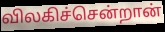
விலகிச்சென்றான்